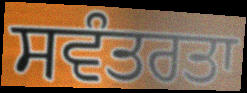
ਸਵੰਤਰਤਾ